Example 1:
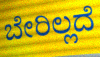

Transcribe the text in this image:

ಬೇರಿಲ್ಲದೆ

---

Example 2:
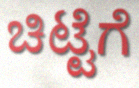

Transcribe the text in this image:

ಚಿಟ್ಟೆಗೆ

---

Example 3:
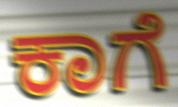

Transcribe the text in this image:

ಕಾಗೆ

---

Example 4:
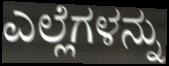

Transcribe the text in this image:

ಎಲ್ಲೆಗಳನ್ನು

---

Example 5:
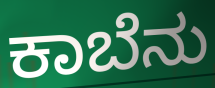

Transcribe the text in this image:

ಕಾಬೆನು